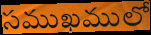
సముఖములో